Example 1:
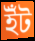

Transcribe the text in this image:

ইঁট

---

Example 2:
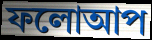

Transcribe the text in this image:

ফলোআপ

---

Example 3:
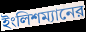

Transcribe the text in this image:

ইংলিশম্যানের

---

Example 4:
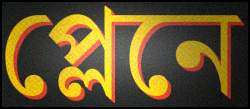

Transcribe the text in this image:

প্লেনে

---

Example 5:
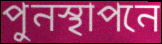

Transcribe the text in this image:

পুনস্থাপনে